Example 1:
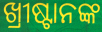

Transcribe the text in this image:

ଖ୍ରୀଷ୍ଟାନଙ୍କ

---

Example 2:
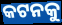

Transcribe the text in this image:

କଟନକୁ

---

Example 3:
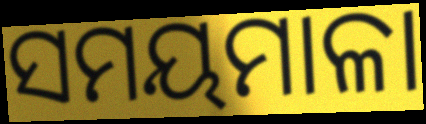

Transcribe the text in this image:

ସମୟମାଳା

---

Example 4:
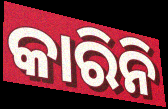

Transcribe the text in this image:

କାରିନି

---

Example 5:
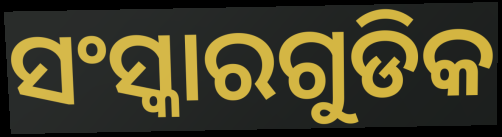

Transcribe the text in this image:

ସଂସ୍କାରଗୁଡିକ